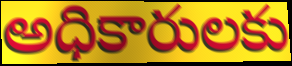
అధికారులకు